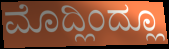
ಮೊದ್ಲಿಂದ್ಲೂ